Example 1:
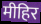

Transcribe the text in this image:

मीहिर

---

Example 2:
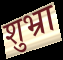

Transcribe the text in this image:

शुभ्रा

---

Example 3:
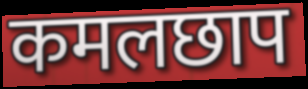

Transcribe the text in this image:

कमलछाप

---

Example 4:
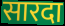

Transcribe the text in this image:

सारदा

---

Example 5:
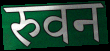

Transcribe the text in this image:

रुवन